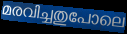
മരവിച്ചതുപോലെ